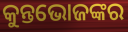
କୁନ୍ତଭୋଜଙ୍କର